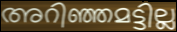
അറിഞ്ഞമട്ടില്ല